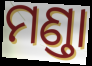
ମଣ୍ଡା